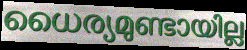
ധൈര്യമുണ്ടായില്ല